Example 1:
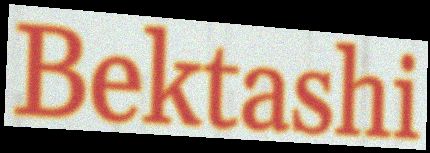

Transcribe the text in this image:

Bektashi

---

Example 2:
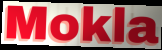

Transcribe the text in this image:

Mokla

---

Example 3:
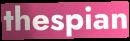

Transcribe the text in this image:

thespian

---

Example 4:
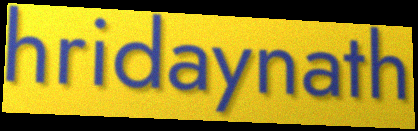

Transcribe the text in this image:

hridaynath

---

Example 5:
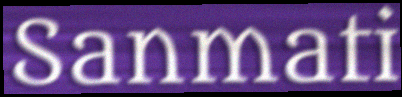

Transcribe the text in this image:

Sanmati